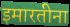
इमारतीना